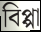
বিপ্পা